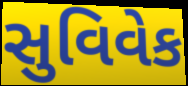
સુવિવેક